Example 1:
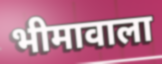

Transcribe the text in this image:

भीमावाला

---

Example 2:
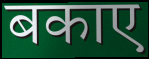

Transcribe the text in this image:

बकाए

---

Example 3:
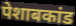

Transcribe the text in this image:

पेशाबकांड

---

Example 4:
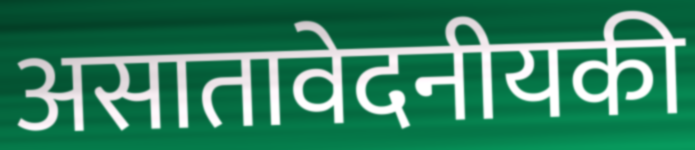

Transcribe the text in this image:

असातावेदनीयकी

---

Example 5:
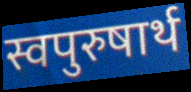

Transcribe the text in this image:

स्वपुरुषार्थ